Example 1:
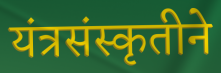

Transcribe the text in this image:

यंत्रसंस्कृतीने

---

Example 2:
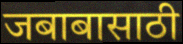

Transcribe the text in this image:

जबाबासाठी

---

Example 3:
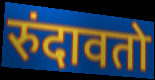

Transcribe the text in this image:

रुंदावतो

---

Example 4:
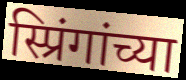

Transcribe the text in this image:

स्प्रिंगांच्या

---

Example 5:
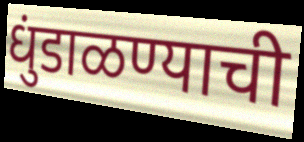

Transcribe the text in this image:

धुंडाळण्याची